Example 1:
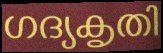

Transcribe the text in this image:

ഗദ്യകൃതി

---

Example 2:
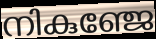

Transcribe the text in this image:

നികുഞ്ജേ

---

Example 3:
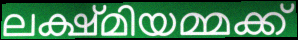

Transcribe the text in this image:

ലക്ഷ്മിയമ്മക്ക്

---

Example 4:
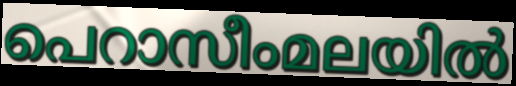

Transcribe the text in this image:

പെറാസീംമലയിൽ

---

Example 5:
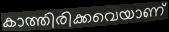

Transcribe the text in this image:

കാത്തിരിക്കവെയാണ്